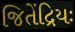
જિતેંદ્રિયઃ